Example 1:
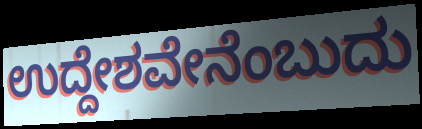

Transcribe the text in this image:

ಉದ್ದೇಶವೇನೆಂಬುದು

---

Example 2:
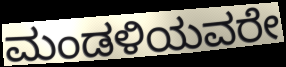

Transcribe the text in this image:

ಮಂಡಳಿಯವರೇ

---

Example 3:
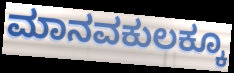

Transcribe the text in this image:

ಮಾನವಕುಲಕ್ಕೂ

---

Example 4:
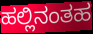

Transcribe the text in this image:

ಹಲ್ಲಿನಂತಹ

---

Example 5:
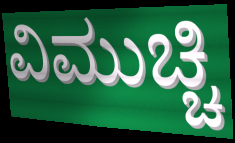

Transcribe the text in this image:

ವಿಮುಚ್ಚಿ